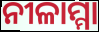
ନୀଳାମ୍ମା